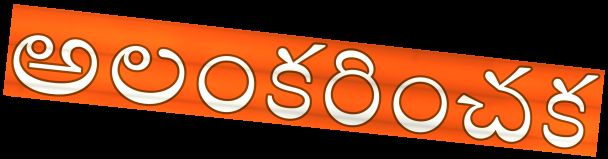
అలంకరించక